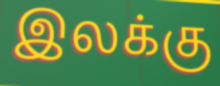
இலக்கு